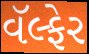
વૅલ્ફેર